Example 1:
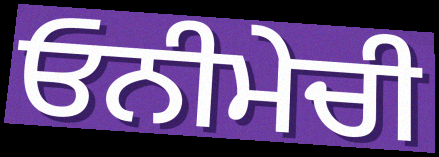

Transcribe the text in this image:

ਓਨੀਮੇਚੀ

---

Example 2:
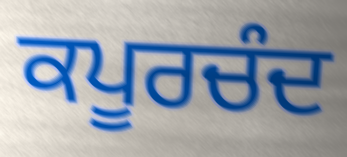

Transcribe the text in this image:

ਕਪੂਰਚੰਦ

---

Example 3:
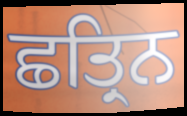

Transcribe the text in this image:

ਛਤ੍ਰਿਨ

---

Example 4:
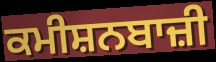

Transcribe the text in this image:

ਕਮੀਸ਼ਨਬਾਜ਼ੀ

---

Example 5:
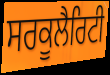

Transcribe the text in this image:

ਸਰਕੂਲੈਰਿਟੀ